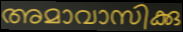
അമാവാസിക്കു